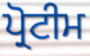
ਪ੍ਰੋਟੀਮ